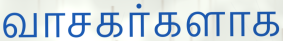
வாசகர்களாக